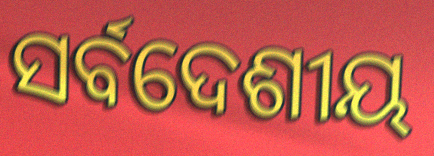
ସର୍ବଦେଶୀୟ